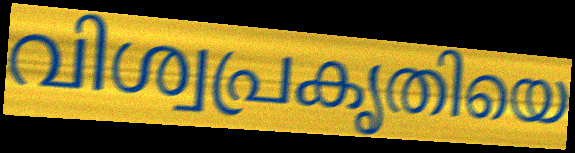
വിശ്വപ്രകൃതിയെ